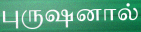
புருஷனால்